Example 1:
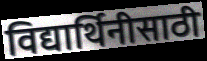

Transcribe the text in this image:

विद्यार्थिनीसाठी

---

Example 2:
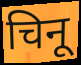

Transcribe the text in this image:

चिनू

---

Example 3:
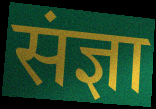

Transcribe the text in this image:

संज्ञा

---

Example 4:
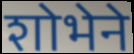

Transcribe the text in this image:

शोभेने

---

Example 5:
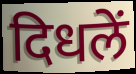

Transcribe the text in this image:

दिधलें